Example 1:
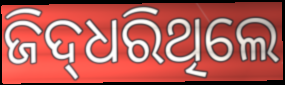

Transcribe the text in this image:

ଜିଦ୍‌ଧରିଥିଲେ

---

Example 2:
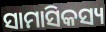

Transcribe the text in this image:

ସାମାସିକସ୍ୟ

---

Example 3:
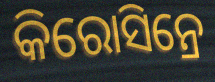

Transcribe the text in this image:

କିରୋସିନ୍ରେ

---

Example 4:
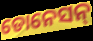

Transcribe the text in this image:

ଡୋନେସନ୍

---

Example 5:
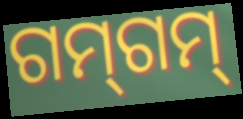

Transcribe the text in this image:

ଗମ୍‍ଗମ୍